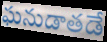
ఘనుడాతడే